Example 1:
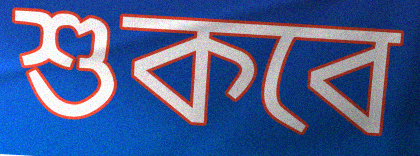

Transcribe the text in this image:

শুকবে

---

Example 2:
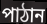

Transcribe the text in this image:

পাঠান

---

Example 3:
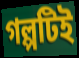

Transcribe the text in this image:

গল্পটিই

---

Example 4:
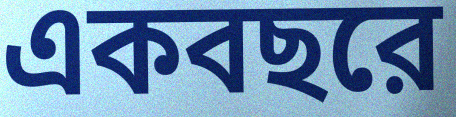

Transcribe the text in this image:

একবছরে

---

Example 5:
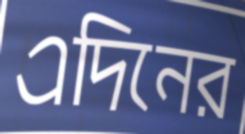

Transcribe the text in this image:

এদিনের